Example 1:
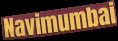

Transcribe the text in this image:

Navimumbai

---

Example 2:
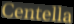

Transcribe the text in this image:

Centella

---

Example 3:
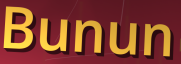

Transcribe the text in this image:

Bunun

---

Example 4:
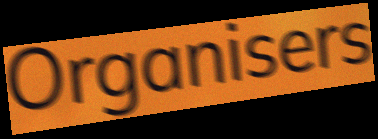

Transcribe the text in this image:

Organisers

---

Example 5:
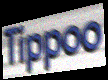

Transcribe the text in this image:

Tippoo